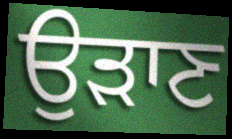
ਉਡ਼ਾਣ